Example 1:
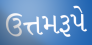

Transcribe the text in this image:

ઉત્તમરૂપે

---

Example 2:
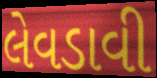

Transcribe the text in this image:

લેવડાવી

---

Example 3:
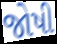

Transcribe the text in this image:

જોષી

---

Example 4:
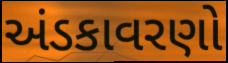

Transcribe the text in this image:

અંડકાવરણો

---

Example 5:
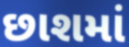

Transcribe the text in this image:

છાશમાં